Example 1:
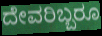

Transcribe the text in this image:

ದೇವರಿಬ್ಬರೂ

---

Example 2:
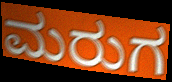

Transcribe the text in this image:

ಮರುಗ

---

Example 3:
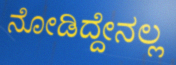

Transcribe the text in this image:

ನೋಡಿದ್ದೇನಲ್ಲ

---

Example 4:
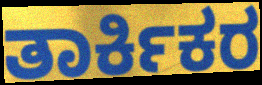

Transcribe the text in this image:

ತಾರ್ಕಿಕರ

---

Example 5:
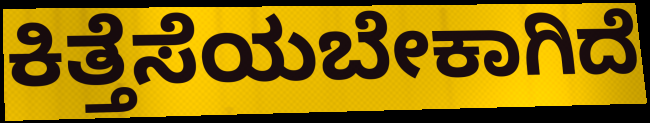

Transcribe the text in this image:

ಕಿತ್ತೆಸೆಯಬೇಕಾಗಿದೆ